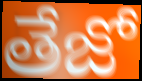
తేజో